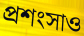
প্রশংসাও